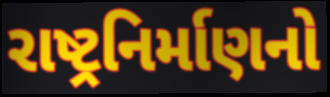
રાષ્ટ્રનિર્માણનો